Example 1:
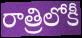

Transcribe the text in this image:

రాత్రిలోకీ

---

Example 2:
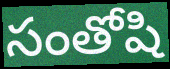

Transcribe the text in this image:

సంతోషి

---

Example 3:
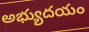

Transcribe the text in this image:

అభ్యుదయం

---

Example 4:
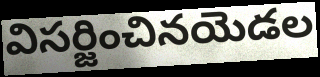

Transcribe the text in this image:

విసర్జించినయెడల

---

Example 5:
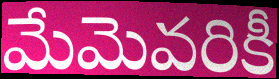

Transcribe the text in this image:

మేమెవరికీ